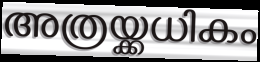
അത്രയ്ക്കധികം